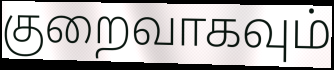
குறைவாகவும்